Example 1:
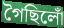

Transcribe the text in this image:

গৈছিলোঁ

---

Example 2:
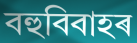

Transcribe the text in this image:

বহুবিবাহৰ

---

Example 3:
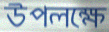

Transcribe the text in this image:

উপলক্ষে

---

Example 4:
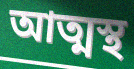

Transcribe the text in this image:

আত্মস্থ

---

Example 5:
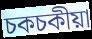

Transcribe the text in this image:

চকচকীয়া